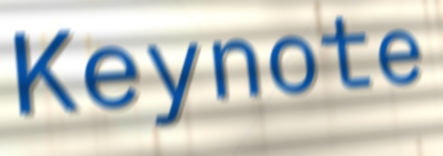
Keynote